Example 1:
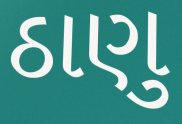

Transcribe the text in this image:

ઠાણુ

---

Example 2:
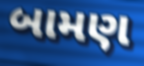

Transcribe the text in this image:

બામણ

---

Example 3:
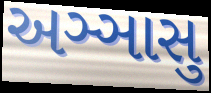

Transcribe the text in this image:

અઞ્ઞાસુ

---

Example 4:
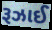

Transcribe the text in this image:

રૂઝાઈ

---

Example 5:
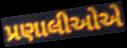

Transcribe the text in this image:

પ્રણાલીઓએ